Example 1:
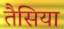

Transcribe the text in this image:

तैसिया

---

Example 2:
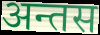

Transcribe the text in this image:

अन्तस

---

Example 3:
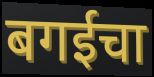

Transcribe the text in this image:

बगईचा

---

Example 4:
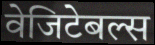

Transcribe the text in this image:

वेजिटेबल्स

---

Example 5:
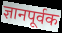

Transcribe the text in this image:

ज्ञानपूर्वक